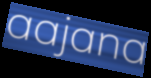
aajana